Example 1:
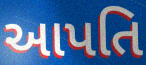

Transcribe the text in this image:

આપતિ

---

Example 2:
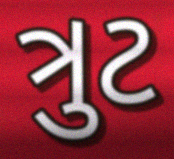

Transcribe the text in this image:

ત્રુટ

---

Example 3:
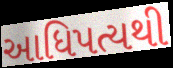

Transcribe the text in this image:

આધિપત્યથી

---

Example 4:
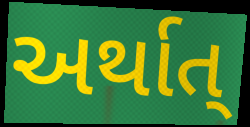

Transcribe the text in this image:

અર્થાત્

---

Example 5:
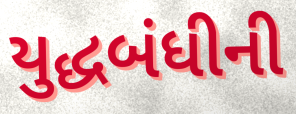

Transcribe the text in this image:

યુદ્ધબંધીની